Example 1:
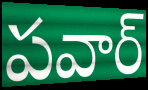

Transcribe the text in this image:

పవార్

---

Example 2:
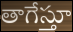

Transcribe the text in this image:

తాగేస్తూ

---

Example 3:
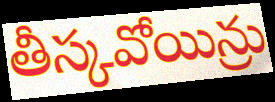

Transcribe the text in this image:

తీస్కవోయిన్రు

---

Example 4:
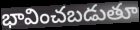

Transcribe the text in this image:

భావించబడుతూ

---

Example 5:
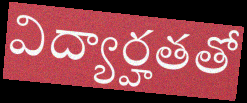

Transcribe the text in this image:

విద్యార్హతతో